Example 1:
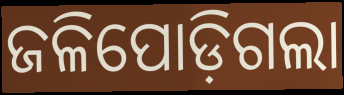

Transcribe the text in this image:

ଜଳିପୋଡ଼ିଗଲା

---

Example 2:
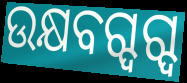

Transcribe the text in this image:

ଉକ୍ଷବଗ୍ଦଗ୍ଦ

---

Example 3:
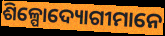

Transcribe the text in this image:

ଶିଳ୍ପୋଦ୍ୟୋଗୀମାନେ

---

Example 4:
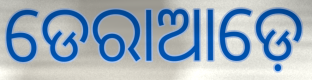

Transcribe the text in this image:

ଡେରାଆଡ଼େ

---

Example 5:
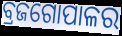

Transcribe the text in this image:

ବ୍ରଜଗୋପାଳର